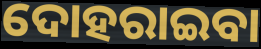
ଦୋହରାଇବା